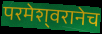
परमेश्वरानेच